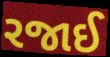
રજાઈ